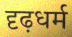
दृढ़धर्म